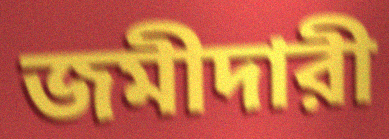
জমীদারী